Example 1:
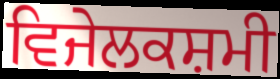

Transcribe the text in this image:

ਵਿਜੇਲਕਸ਼ਮੀ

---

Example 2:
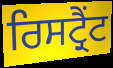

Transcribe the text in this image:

ਰਿਸਟ੍ਰੈਂਟ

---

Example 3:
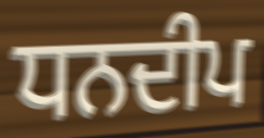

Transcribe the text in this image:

ਧਨਦੀਪ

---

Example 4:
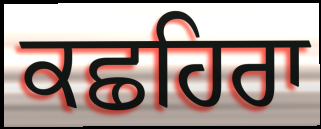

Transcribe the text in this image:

ਕਛਹਿਰਾ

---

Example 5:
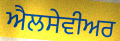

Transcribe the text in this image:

ਐਲਸੇਵੀਅਰ